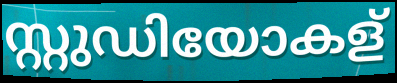
സ്റ്റുഡിയോകള്